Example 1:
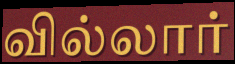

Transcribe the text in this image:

வில்லார்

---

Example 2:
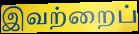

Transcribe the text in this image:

இவற்றைப்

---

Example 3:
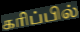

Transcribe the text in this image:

கரிப்பில்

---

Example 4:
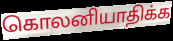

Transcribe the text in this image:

கொலனியாதிக்க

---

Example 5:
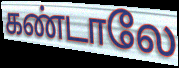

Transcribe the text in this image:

கண்டாலே